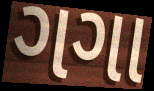
ગગા